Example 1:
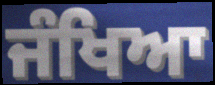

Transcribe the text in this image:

ਜੰਖਿਆ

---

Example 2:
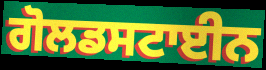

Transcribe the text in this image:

ਗੋਲਡਸਟਾਈਨ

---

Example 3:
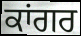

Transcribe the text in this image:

ਕਾਂਗਰ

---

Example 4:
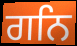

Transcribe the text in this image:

ਗਨਿ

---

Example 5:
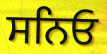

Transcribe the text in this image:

ਸਨਿਓ